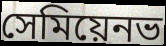
সেমিয়েনভ